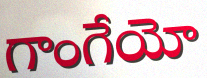
గాంగేయో